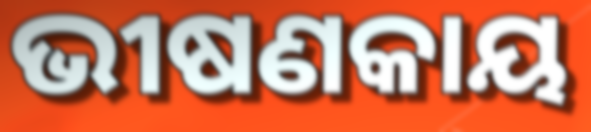
ଭୀଷଣକାୟ